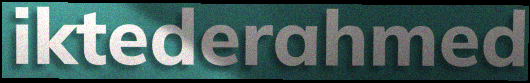
iktederahmed